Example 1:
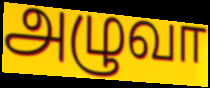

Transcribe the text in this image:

அழுவா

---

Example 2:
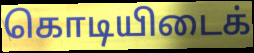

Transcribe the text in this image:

கொடியிடைக்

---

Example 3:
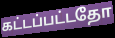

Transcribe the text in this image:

கட்டப்பட்டதோ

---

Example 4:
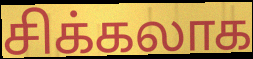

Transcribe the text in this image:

சிக்கலாக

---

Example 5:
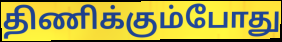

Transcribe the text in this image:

திணிக்கும்போது